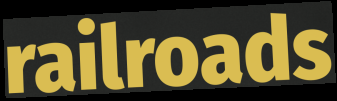
railroads